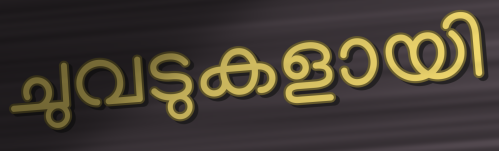
ചുവടുകളായി